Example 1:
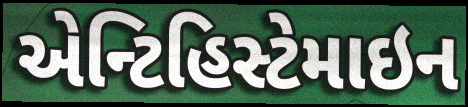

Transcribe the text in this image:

એન્ટિહિસ્ટેમાઇન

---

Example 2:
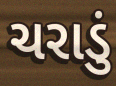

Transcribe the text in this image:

ચરાડું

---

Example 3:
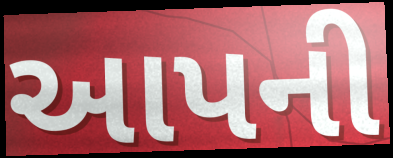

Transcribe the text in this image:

આપની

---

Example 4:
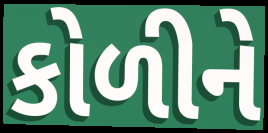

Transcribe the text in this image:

કોળીને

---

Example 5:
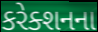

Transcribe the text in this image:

કરેક્શનના